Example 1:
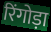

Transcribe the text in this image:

रिंगोड़ा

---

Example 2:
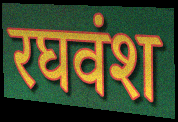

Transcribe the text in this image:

रघवंश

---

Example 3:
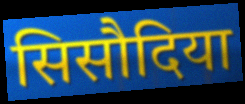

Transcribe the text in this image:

सिसौदिया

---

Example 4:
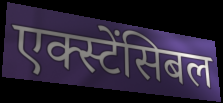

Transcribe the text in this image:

एक्स्टेंसिबल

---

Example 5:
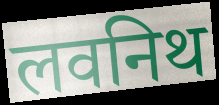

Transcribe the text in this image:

लवनिथ